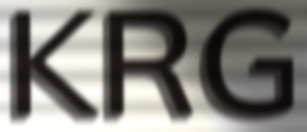
KRG